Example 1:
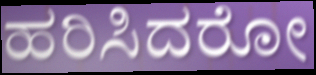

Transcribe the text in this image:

ಹರಿಸಿದರೋ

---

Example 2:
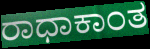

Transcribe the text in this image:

ರಾಧಾಕಾಂತ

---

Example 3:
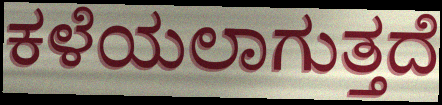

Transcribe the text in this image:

ಕಳೆಯಲಾಗುತ್ತದೆ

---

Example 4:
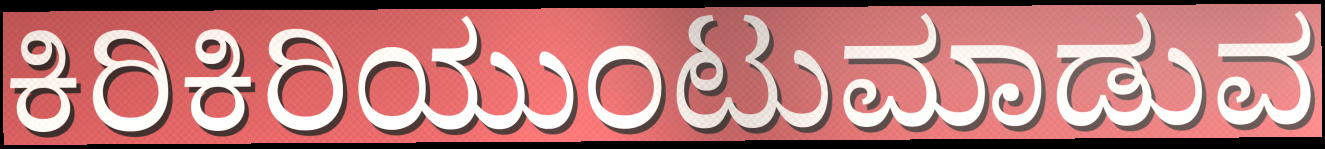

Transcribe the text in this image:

ಕಿರಿಕಿರಿಯುಂಟುಮಾಡುವ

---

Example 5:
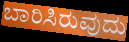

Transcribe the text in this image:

ಬಾರಿಸಿರುವುದು